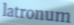
latronum